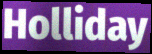
Holliday